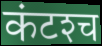
कंटश्च